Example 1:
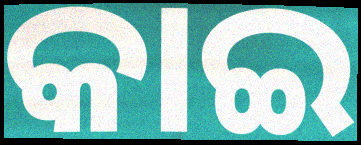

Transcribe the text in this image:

କାଇ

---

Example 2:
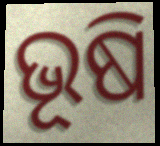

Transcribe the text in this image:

ଭୂଷି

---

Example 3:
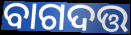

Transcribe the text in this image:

ବାଗଦତ୍ତ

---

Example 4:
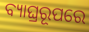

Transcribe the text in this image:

ବ୍ୟାଘ୍ରରୂପରେ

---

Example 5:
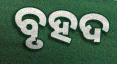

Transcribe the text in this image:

ବୃହଦ